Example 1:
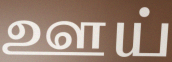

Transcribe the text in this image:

ஊய்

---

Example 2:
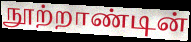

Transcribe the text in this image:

நூற்றாண்டின்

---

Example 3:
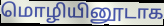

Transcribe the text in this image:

மொழியினூடாக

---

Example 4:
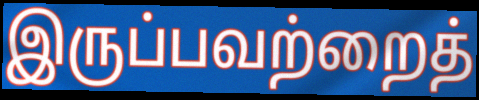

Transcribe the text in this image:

இருப்பவற்றைத்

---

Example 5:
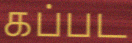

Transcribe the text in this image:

கப்பட